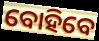
ବୋହିବେ